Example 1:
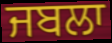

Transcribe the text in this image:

ਜਬਲਾ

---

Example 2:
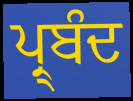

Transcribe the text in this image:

ਪ੍ਰ੍ਬੰਦ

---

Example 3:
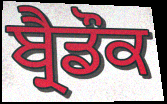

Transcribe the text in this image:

ਬ੍ਰੈਡੌਕ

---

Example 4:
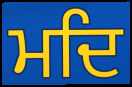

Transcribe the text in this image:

ਮਦਿ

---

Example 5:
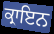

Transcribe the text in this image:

ਕ੍ਰਾਇਨ